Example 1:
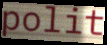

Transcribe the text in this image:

polit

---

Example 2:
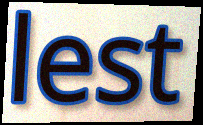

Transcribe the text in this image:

lest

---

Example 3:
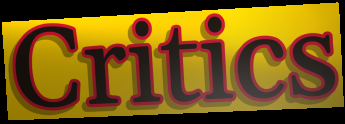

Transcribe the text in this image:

Critics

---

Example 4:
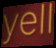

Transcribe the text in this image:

yell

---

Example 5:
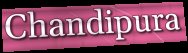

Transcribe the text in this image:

Chandipura